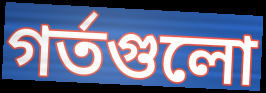
গর্তগুলো